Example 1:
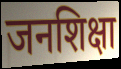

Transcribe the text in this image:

जनशिक्षा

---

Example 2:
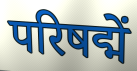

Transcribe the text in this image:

परिषद्में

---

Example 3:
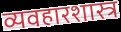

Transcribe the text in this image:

व्यवहारशास्त्र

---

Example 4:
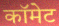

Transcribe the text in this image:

कॉमेट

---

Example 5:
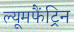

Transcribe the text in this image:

ल्यूमफैंट्रिन